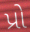
પ્રો